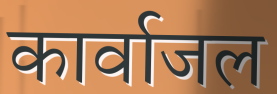
कार्वाजल